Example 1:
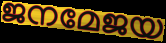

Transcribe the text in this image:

ജനമേജയ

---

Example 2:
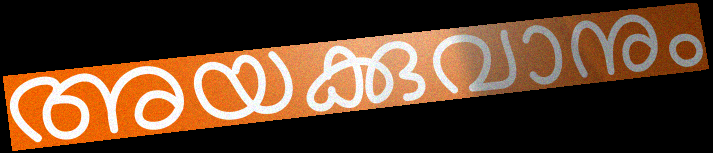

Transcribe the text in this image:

അയക്കുവാനും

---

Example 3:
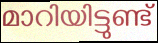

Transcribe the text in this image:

മാറിയിട്ടുണ്ട്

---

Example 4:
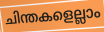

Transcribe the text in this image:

ചിന്തകളെല്ലാം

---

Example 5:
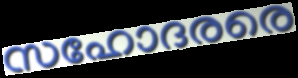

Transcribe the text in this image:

സഹോദരരെ